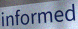
informed